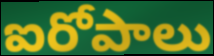
ఐరోపాలు